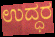
ಉದ್ಧರ